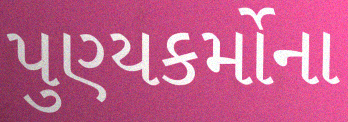
પુણ્યકર્મોના